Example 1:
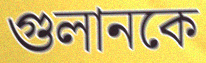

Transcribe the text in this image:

গুলানকে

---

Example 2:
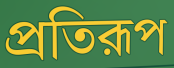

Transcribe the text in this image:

প্রতিরূপ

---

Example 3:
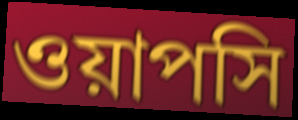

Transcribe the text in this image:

ওয়াপসি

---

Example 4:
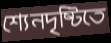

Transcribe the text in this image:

শ্যেনদৃষ্টিতে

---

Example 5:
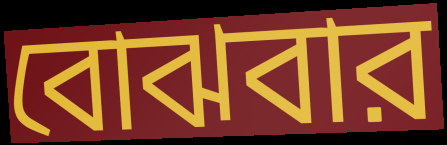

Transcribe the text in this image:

বোঝবার